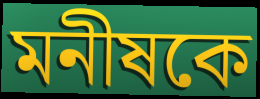
মনীষকে